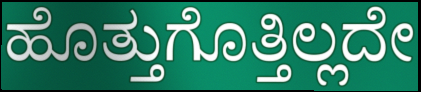
ಹೊತ್ತುಗೊತ್ತಿಲ್ಲದೇ